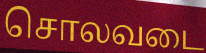
சொலவடை